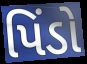
પિંડો